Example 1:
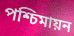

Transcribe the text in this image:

পশ্চিমায়ন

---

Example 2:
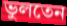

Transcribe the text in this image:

ভুলতেন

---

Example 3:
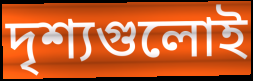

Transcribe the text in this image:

দৃশ্যগুলোই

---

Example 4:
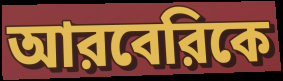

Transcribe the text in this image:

আরবেরিকে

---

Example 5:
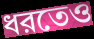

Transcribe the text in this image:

ধরতেও